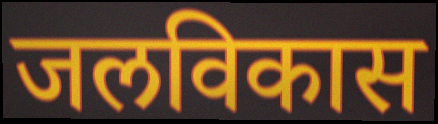
जलविकास